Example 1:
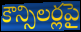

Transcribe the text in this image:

కౌన్సిలర్లపై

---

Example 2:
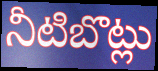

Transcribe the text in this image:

నీటిబొట్లు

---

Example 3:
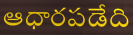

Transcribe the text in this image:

ఆధారపడేది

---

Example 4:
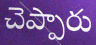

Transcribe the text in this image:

చెప్పారు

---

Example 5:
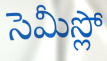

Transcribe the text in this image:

సెమీస్లో